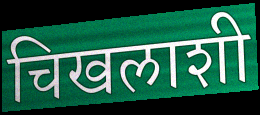
चिखलाशी